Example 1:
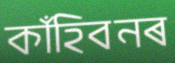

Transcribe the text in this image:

কাঁহিবনৰ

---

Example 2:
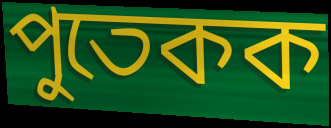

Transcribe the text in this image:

পুতেকক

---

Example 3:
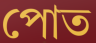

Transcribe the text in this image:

পোত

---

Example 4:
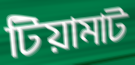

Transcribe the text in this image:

টিয়ামাট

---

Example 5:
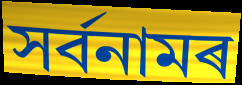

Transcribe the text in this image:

সৰ্বনামৰ